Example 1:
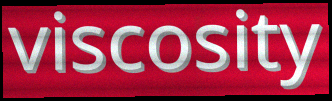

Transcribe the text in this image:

viscosity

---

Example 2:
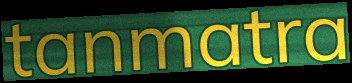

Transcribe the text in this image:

tanmatra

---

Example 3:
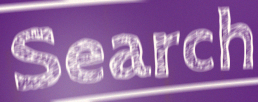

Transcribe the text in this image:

Search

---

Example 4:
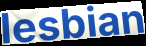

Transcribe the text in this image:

lesbian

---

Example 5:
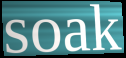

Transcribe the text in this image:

soak